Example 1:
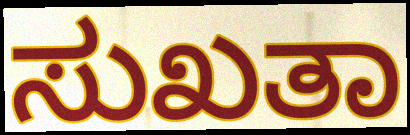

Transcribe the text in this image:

ಸುಖತಾ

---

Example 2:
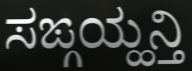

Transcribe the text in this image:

ಸಙ್ಗಯ್ಹನ್ತಿ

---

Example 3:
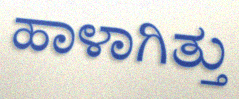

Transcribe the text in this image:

ಹಾಳಾಗಿತ್ತು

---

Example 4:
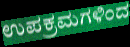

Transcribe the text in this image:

ಉಪಕ್ರಮಗಳಿಂದ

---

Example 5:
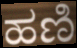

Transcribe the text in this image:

ಹಣಿ